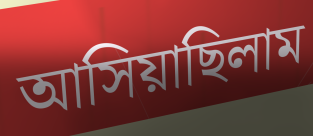
আসিয়াছিলাম